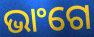
ଭାଂଗେ